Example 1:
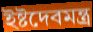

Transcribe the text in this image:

ইষ্টদেবমন্ত্র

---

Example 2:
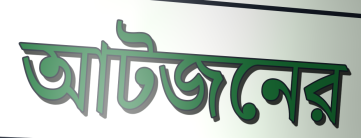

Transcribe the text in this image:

আটজনের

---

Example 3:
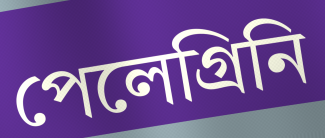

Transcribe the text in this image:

পেলেগ্রিনি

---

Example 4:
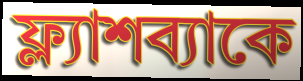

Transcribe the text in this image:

ফ্ল্যাশব্যাকে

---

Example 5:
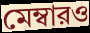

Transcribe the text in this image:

মেম্বারও